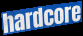
hardcore